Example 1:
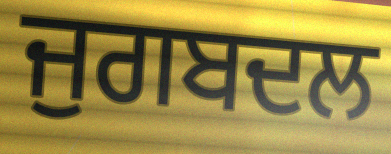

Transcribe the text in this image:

ਜੁਗਬਦਲ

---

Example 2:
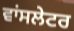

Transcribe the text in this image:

ਵਾਂਸਲੇਟਰ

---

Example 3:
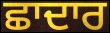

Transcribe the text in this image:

ਛਾਦਾਰ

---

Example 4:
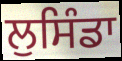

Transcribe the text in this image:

ਲੁਸਿੰਡਾ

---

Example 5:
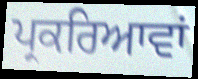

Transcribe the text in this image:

ਪ੍ਰਕਰਿਆਵਾਂ